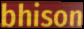
bhison